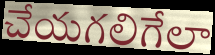
చేయగలిగేలా